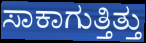
ಸಾಕಾಗುತ್ತಿತ್ತು